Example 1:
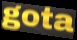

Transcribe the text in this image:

gota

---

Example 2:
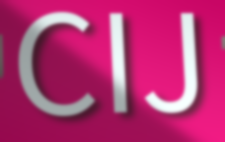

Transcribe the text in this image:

CIJ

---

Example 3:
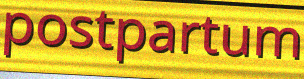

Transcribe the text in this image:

postpartum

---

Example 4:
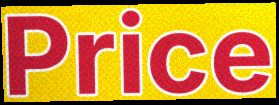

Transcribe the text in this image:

Price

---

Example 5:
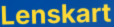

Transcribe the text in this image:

Lenskart